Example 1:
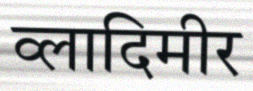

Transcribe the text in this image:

व्‍लादिमीर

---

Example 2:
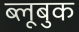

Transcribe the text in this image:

ब्लूबुक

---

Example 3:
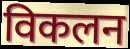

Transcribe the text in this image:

विकलन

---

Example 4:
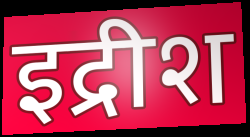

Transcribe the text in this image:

इद्रीश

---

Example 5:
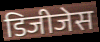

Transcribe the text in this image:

डिजीजेस